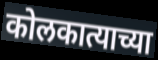
कोलकात्याच्या